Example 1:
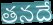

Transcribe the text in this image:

తనదే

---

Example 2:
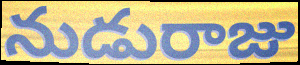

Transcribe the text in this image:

నుడురాజు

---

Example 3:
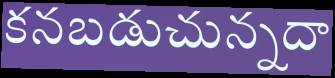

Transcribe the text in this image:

కనబడుచున్నదా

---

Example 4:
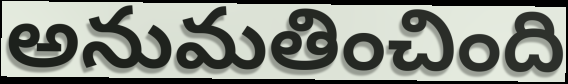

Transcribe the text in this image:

అనుమతించింది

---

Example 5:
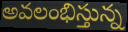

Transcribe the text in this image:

అవలంభిస్తున్న